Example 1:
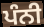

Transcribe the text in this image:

ਪੰਨੀ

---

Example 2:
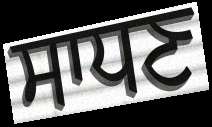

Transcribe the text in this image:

ਸਾਧਣ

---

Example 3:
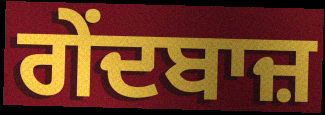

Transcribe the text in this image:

ਗੇਂਦਬਾਜ਼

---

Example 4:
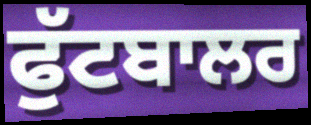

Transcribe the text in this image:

ਫੁੱਟਬਾਲਰ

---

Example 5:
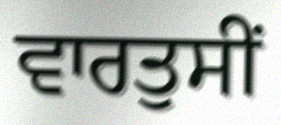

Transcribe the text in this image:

ਵਾਰਤੁਸੀਂ